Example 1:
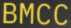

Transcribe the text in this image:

BMCC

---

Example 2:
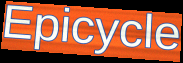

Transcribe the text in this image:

Epicycle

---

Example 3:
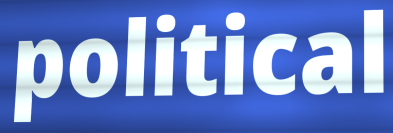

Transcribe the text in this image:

political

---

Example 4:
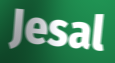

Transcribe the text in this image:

Jesal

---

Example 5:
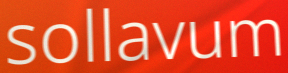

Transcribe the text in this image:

sollavum